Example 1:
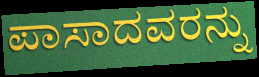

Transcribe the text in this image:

ಪಾಸಾದವರನ್ನು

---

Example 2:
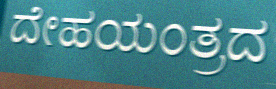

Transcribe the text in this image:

ದೇಹಯಂತ್ರದ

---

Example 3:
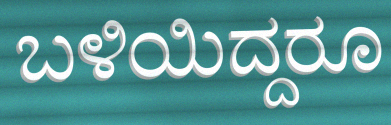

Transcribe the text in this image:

ಬಳಿಯಿದ್ದರೂ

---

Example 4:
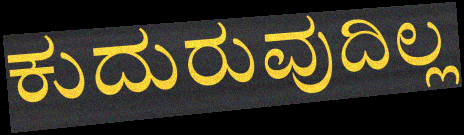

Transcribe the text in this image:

ಕುದುರುವುದಿಲ್ಲ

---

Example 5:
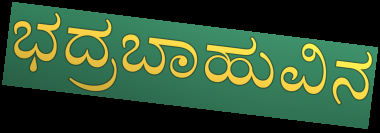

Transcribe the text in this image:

ಭದ್ರಬಾಹುವಿನ